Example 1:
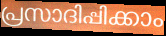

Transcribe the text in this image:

പ്രസാദിപ്പിക്കാം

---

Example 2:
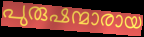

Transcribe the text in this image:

പുരുഷന്മാരായ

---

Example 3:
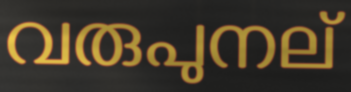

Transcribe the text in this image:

വരുപുനല്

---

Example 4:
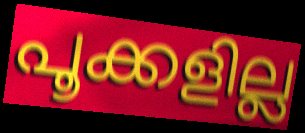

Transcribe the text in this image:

പൂക്കളില്ല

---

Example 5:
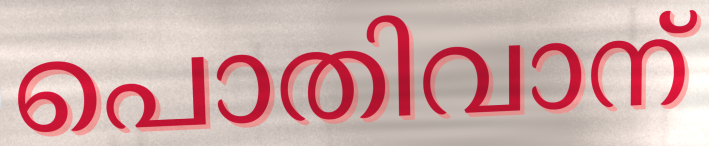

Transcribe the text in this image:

പൊതിവാന്